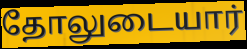
தோலுடையார்